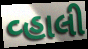
વ્હાલી